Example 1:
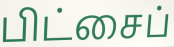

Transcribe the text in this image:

பிட்சைப்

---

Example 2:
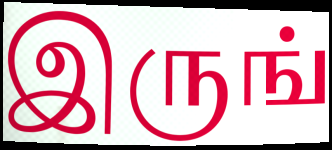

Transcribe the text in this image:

இருங்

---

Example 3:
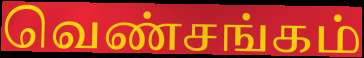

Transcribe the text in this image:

வெண்சங்கம்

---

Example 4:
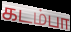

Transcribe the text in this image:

கடம்பா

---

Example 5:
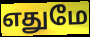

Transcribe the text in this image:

எதுமே